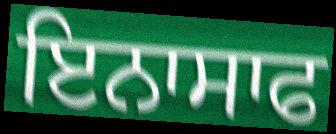
ਇਨਾਸਾਫ